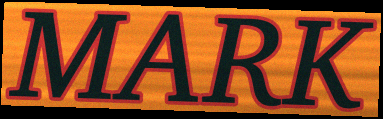
MARK